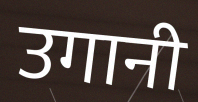
उगानी